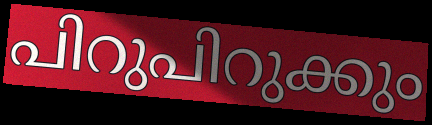
പിറുപിറുക്കും